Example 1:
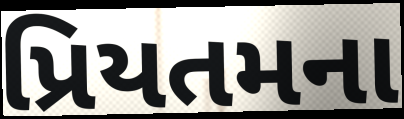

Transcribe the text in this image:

પ્રિયતમના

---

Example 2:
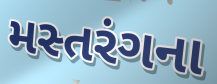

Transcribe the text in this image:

મસ્તરંગના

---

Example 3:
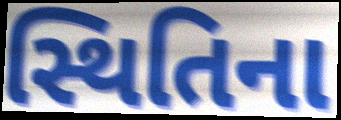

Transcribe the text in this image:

સ્થિતિના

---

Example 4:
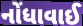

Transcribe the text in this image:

નોંધાવાઈ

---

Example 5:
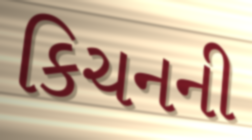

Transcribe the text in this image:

કિચનની